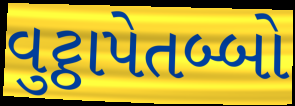
વુટ્ઠાપેતબ્બો